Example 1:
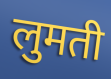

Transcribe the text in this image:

लुमती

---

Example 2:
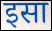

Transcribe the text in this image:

इसा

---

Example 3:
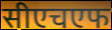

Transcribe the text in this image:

सीएचएफ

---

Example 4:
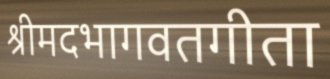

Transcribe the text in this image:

श्रीमदभागवतगीता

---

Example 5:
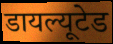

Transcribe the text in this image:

डायल्यूटेड